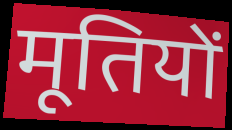
मूतियों